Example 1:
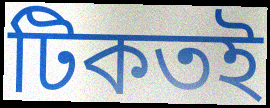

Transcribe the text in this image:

টিকতই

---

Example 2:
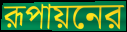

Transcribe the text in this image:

রূপায়নের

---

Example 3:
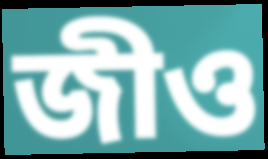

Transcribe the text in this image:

জীও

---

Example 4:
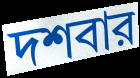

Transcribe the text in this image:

দশবার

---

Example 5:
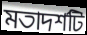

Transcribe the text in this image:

মতাদর্শটি